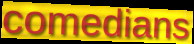
comedians